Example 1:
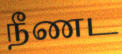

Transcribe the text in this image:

நீணட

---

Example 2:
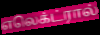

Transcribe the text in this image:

எலெக்ட்ரால்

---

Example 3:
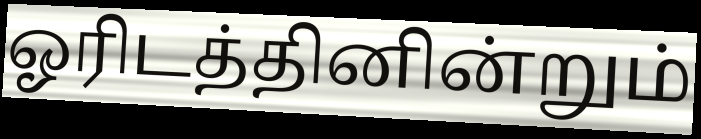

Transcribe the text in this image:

ஓரிடத்தினின்றும்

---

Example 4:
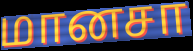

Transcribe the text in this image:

மானசா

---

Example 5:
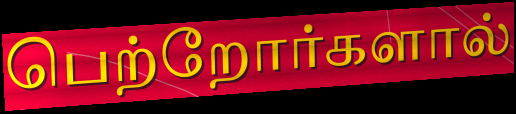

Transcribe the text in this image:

பெற்றோர்களால்